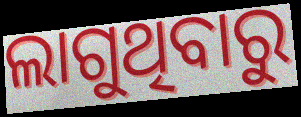
ଲାଗୁଥିବାରୁ